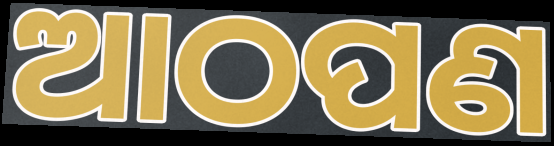
ଆଠପଣ